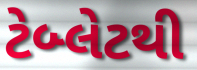
ટેબ્લેટથી